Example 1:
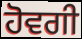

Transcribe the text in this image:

ਹੋਵਗੀ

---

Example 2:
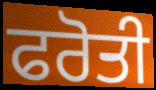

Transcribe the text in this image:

ਫਰੋਤੀ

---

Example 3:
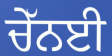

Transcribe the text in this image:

ਚੇੱਨਈ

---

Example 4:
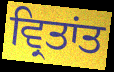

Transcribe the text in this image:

ਵ੍ਰਿਤਾਂਤ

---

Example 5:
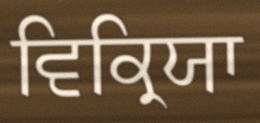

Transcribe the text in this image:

ਵਿਕ੍ਰਿਯਾ